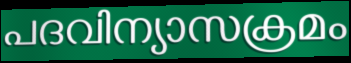
പദവിന്യാസക്രമം